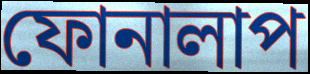
ফোনালাপ